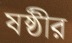
ষষ্ঠীর